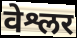
वेश्लर